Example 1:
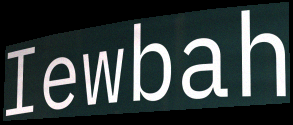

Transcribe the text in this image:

Iewbah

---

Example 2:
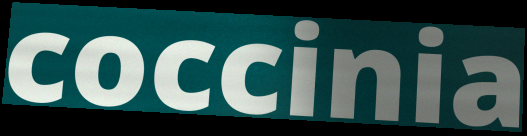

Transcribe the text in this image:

coccinia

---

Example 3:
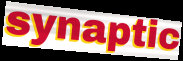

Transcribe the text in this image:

synaptic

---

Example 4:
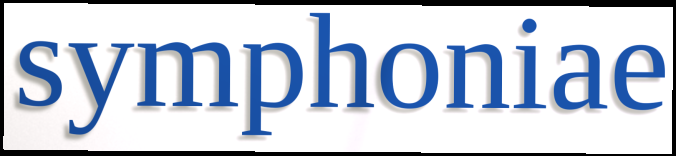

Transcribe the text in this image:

symphoniae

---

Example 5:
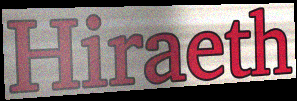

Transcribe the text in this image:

Hiraeth